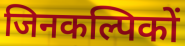
जिनकल्पिकों